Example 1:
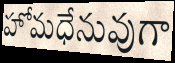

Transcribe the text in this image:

హోమధేనువుగా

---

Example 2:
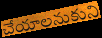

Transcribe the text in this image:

చేయాలనుకుని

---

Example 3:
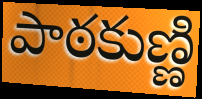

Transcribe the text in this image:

పాఠకుణ్ణి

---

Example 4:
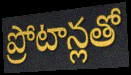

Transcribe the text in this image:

ప్రోటాన్లతో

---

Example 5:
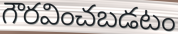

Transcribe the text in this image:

గౌరవించబడటం